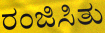
ರಂಜಿಸಿತು